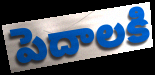
పెదాలకి